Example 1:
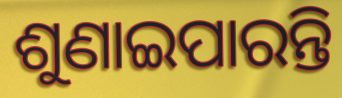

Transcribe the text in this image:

ଶୁଣାଇପାରନ୍ତି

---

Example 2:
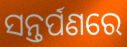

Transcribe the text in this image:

ସନ୍ତର୍ପଣରେ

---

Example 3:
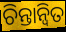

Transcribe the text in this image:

ଚିନ୍ତାନ୍ୱିତ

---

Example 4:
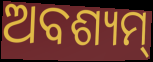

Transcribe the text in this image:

ଅବଶ୍ୟମ୍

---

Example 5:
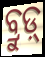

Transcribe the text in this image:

ବ୍ରୁଡ଼୍